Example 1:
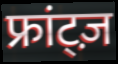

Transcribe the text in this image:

फ्रांट्ज़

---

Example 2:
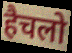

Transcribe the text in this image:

हैचलो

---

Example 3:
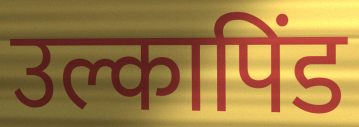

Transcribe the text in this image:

उल्‍कापिंड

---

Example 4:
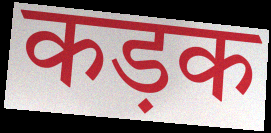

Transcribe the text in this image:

कड़क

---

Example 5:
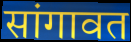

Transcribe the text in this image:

सांगावत